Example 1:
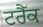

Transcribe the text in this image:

ਟਰੈੱਕ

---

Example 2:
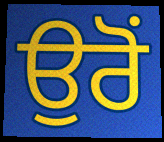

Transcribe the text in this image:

ਉਰੋਂ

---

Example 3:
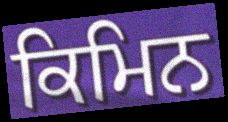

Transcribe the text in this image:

ਕਿਮਿਨ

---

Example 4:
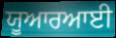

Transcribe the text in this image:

ਯੂਆਰਆਈ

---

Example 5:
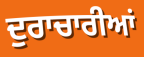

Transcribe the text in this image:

ਦੁਰਾਚਾਰੀਆਂ